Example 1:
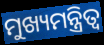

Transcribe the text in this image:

ମୁଖ୍ୟମନ୍ତ୍ରିତ୍ବ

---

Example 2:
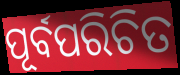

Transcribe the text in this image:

ପୂର୍ବପରିଚିତ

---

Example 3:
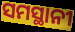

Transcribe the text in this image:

ସମସ୍ଥାନୀ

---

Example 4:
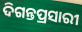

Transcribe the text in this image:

ଦିଗନ୍ତପ୍ରସାରୀ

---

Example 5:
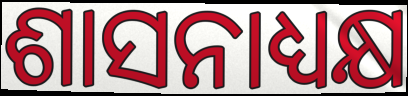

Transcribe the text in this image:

ଶାସନାଧ୍ୟକ୍ଷ